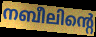
നബീലിന്റെ